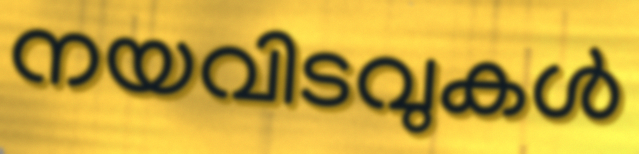
നയവിടവുകൾ